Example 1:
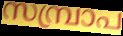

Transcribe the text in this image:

സമ്പ്രാപ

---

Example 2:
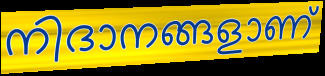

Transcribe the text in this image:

നിദാനങ്ങളാണ്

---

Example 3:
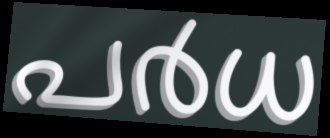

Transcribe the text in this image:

പർധ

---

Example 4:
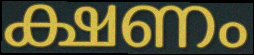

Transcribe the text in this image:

ക്ഷണം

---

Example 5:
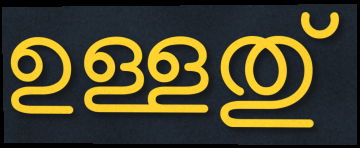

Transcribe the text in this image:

ഉള്ളതു്